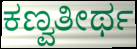
ಕಣ್ವತೀರ್ಥ